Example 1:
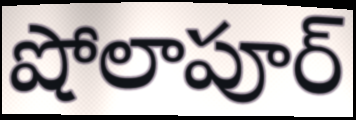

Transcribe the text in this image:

షోలాపూర్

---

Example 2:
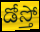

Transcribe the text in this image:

డోస్తో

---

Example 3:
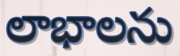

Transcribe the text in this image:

లాభాలను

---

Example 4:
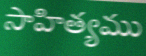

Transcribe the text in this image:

సాహిత్యము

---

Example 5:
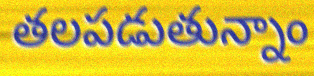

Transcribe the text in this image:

తలపడుతున్నాం